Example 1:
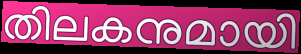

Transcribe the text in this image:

തിലകനുമായി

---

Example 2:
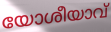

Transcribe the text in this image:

യോശീയാവ്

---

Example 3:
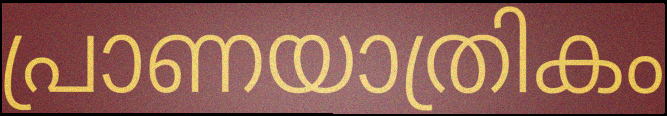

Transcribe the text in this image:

പ്രാണയാത്രികം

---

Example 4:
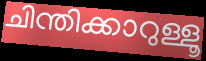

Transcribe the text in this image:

ചിന്തിക്കാറുള്ളൂ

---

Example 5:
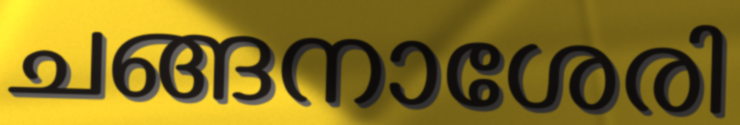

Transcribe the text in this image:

ചങ്ങനാശേരി